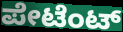
ಪೇಟೆಂಟ್